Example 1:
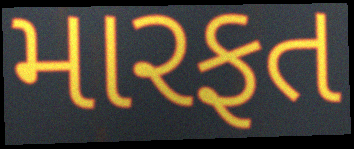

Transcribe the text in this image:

મારફત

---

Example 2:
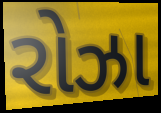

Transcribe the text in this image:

રોઝા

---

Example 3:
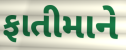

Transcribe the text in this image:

ફાતીમાને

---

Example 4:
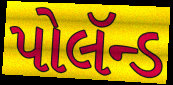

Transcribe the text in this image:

પોલૅન્ડ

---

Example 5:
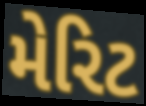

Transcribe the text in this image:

મેરિટ